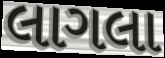
લાગલા